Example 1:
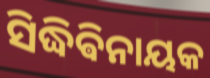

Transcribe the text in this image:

ସିଦ୍ଧିଵିନାୟକ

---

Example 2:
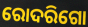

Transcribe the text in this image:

ରୋଦରିଗୋ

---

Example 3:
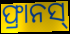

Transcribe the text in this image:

ଫ୍ରାନସ୍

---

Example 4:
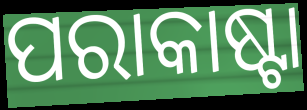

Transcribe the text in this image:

ପରାକାଷ୍ଟା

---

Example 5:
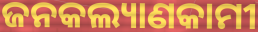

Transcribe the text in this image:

ଜନକଲ୍ୟାଣକାମୀ